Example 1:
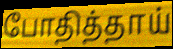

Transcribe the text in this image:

போதித்தாய்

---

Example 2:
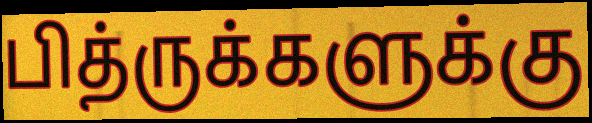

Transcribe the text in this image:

பித்ருக்களுக்கு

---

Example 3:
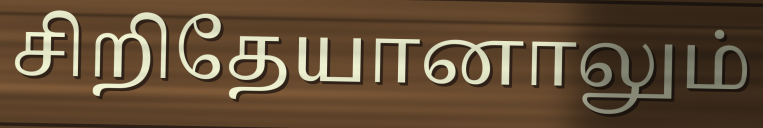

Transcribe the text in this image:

சிறிதேயானாலும்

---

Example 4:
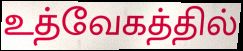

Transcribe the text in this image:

உத்வேகத்தில்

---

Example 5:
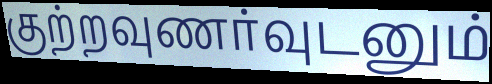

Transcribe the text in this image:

குற்றவுணர்வுடனும்